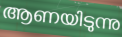
ആണയിടുന്നു